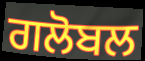
ਗਲੋਬਲ